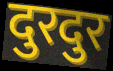
दुरदुर